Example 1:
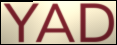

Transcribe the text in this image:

YAD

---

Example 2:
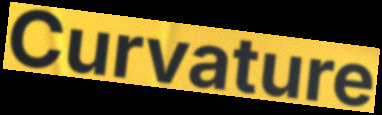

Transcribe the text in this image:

Curvature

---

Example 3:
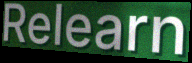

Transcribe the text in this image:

Relearn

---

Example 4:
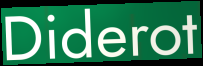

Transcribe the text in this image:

Diderot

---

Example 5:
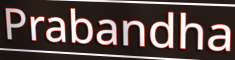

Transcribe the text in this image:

Prabandha